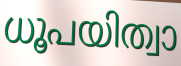
ധൂപയിത്വാ